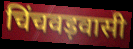
चिंचवड़वासी